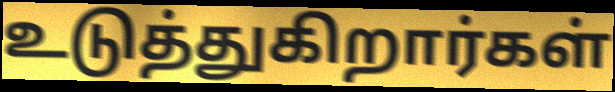
உடுத்துகிறார்கள்